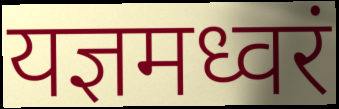
यज्ञमध्वरं